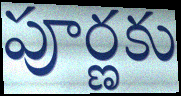
పూర్ణకు